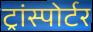
ट्रांस्पोर्टर